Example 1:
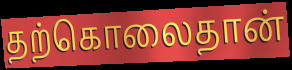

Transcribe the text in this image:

தற்கொலைதான்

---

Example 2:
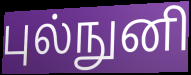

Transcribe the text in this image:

புல்நுனி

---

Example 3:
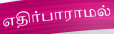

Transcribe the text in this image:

எதிர்பாராமல்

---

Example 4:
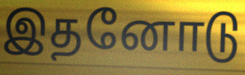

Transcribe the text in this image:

இதனோடு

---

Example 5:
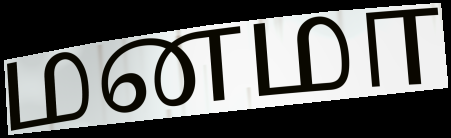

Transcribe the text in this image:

மனமா